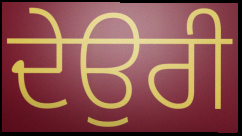
ਦੇਉਰੀ